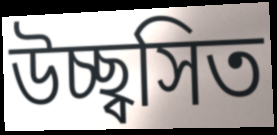
উচ্ছ্বসিত